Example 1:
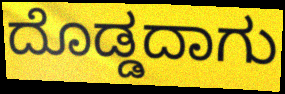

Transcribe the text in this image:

ದೊಡ್ಡದಾಗು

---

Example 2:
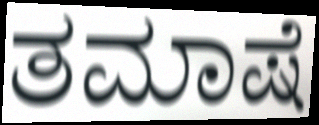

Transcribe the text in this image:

ತಮಾಷೆ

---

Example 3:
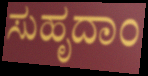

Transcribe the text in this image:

ಸುಹೃದಾಂ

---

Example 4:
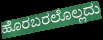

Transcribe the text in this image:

ಹೊರಬರಲೊಲ್ಲದು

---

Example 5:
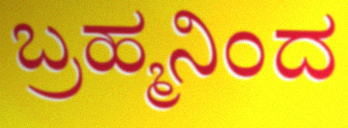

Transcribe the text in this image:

ಬ್ರಹ್ಮನಿಂದ